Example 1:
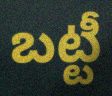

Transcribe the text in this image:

బట్టీ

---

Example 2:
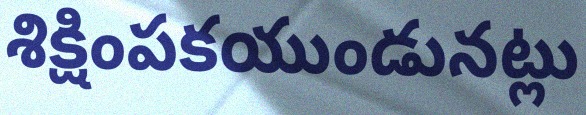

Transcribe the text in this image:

శిక్షింపకయుండునట్లు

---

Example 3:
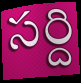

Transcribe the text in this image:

సర్ది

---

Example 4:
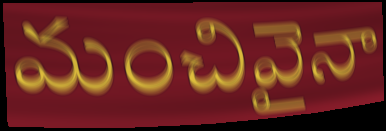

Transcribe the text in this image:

మంచివైనా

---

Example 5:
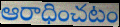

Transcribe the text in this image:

ఆరాధించటం